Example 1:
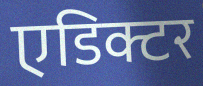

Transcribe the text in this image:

एडिक्टर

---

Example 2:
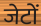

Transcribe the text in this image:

जेटों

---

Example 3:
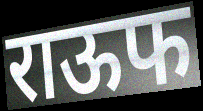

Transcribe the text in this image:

राऊफ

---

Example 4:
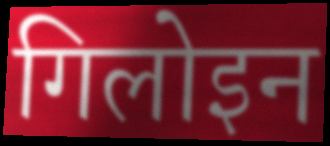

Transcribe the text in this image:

गिलोइन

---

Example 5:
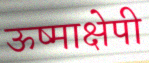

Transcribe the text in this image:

ऊष्माक्षेपी